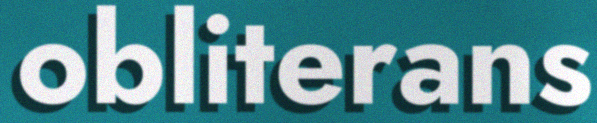
obliterans